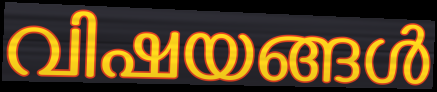
വിഷയങ്ങൾ